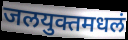
जलयुक्तमधलं